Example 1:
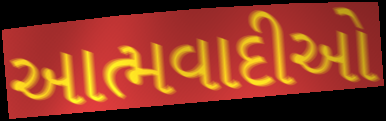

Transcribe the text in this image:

આત્મવાદીઓ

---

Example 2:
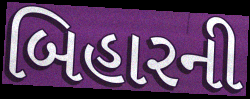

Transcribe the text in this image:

બિહારની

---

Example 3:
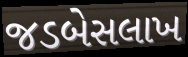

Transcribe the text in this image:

જડબેસલાખ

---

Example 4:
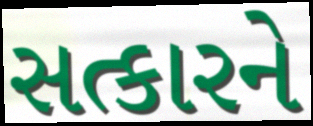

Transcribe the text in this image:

સત્કારને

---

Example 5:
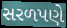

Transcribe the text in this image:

સરળપણે